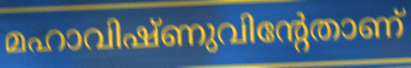
മഹാവിഷ്ണുവിന്റേതാണ്